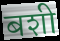
बशी